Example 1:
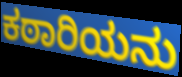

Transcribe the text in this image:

ಕಠಾರಿಯನು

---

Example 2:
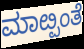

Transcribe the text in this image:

ಮಾೞ್ಪಂತೆ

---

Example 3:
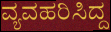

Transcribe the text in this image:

ವ್ಯವಹರಿಸಿದ್ದ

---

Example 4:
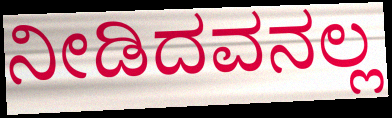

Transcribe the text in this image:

ನೀಡಿದವನಲ್ಲ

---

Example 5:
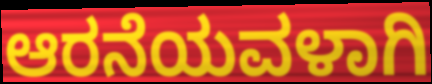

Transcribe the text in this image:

ಆರನೆಯವಳಾಗಿ